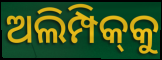
ଅଲିମ୍ପିକ୍‌କୁ